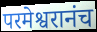
परमेश्वरानंच